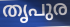
തൃപുര